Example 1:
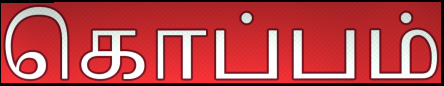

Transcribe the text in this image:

கொப்பம்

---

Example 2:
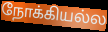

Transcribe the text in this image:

நோக்கியல்ல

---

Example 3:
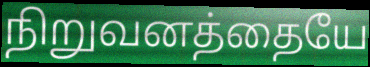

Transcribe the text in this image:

நிறுவனத்தையே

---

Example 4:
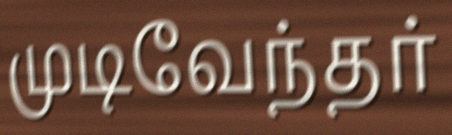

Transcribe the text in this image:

முடிவேந்தர்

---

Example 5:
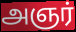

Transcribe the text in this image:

அஞர்